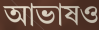
আভাষও